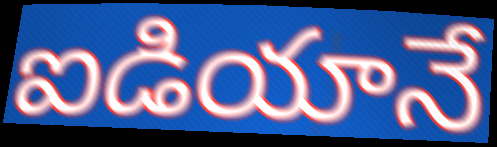
ఐడియానే